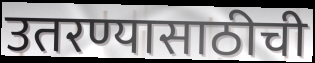
उतरण्यासाठीची